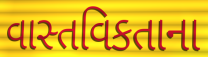
વાસ્તવિકતાના